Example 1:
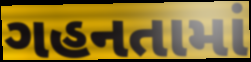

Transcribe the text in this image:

ગહનતામાં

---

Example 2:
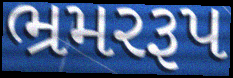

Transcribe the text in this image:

ભ્રમરરૂપ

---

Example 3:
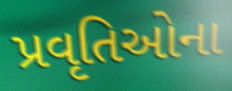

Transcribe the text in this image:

પ્રવૃતિઓના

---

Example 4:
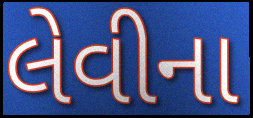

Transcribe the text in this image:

લેવીના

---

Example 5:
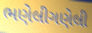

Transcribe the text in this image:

ભણેલીગણેલી